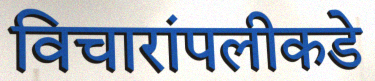
विचारांपलीकडे